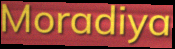
Moradiya